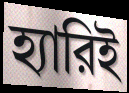
হ্যারিই